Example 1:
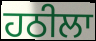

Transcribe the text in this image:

ਹਠੀਲਾ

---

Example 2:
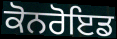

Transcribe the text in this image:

ਕੋਨਰੋਇਡ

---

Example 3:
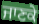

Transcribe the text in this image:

ਜਾਣਕੇ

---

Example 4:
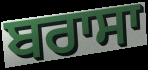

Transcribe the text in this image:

ਬਰਾਸਾ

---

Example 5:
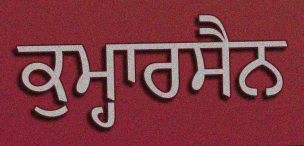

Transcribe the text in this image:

ਕੁਮ੍ਹਾਰਸੈਨ